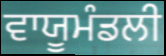
ਵਾਯੂਮੰਡਲੀ